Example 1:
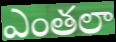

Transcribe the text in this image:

ఎంతలా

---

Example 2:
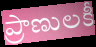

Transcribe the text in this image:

ప్రాణులకీ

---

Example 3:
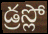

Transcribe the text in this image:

డ్రస్లో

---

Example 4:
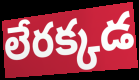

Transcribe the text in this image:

లేరక్కడ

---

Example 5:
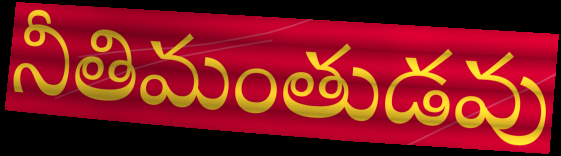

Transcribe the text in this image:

నీతిమంతుడవు